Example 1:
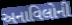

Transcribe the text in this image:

અનાવિલોની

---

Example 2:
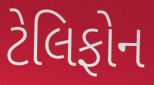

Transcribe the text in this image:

ટેલિફોન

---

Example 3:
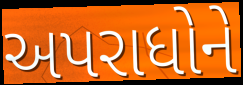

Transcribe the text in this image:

અપરાધોને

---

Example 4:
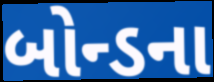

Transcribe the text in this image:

બોન્ડના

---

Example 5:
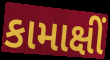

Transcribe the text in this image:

કામાક્ષીં